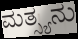
ಮತ್ಸ್ಯನು